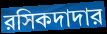
রসিকদাদার